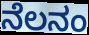
ನೆಲನಂ